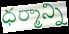
ధర్మాన్ని